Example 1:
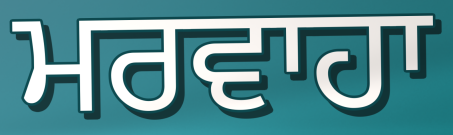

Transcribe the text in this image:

ਮਰਵਾਹਾ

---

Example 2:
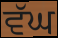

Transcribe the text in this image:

ਵੱਘ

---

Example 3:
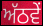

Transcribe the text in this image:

ਅੱਠਵੇਂ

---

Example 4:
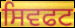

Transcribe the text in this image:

ਸਿਵਫਟ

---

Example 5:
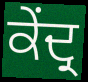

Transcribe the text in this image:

ਕੇਂਦ੍ਰ